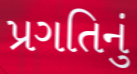
પ્રગતિનું